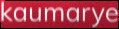
kaumarye